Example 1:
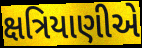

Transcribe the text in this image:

ક્ષત્રિયાણીએ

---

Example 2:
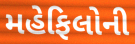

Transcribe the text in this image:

મહેફિલોની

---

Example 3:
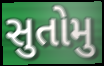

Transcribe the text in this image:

સુતોમુ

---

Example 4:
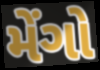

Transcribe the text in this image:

મેંગો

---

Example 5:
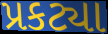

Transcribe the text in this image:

પ્રકટ્યા